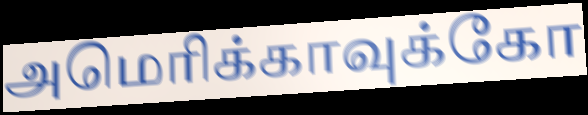
அமெரிக்காவுக்கோ